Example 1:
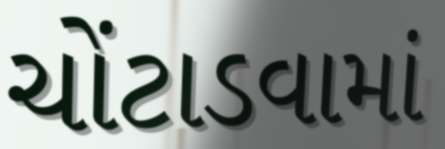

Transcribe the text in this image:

ચોંટાડવામાં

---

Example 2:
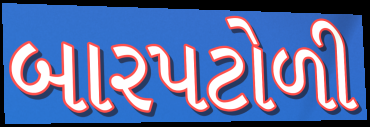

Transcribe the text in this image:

બારપટોળી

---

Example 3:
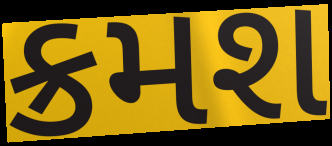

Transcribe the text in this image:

ક્રમશ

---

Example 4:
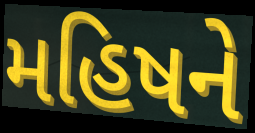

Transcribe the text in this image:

મહિષને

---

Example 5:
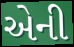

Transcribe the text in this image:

એની